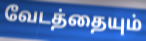
வேடத்தையும்